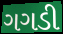
ગગડી